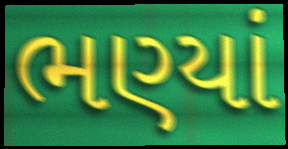
ભણ્યાં